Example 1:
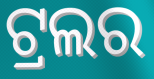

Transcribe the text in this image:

ଟ୍ରଲର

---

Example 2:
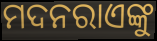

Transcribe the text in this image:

ମଦନରାଏଙ୍କୁ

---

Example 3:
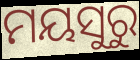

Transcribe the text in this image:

ମୟସୁରୁ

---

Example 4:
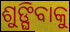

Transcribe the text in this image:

ଶୁଙ୍ଘିବାକୁ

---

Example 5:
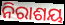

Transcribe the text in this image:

ନିରାଶୟ